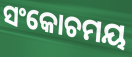
ସଂକୋଚମୟ